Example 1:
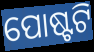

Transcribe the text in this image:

ପୋଷ୍ଟଟି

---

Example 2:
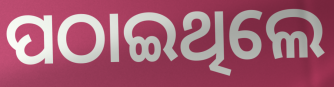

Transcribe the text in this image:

ପଠାଇଥିଲେ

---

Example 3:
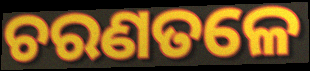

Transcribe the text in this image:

ଚରଣତଳେ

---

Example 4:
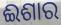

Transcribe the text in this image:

ଈଶାର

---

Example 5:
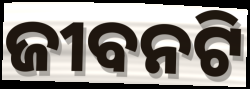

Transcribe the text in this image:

ଜୀବନଟି